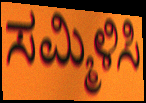
ಸಮ್ಮಿಳಿಸಿ